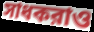
সাধকরাও